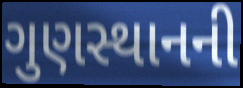
ગુણસ્થાનની